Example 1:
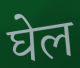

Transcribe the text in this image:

घेल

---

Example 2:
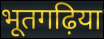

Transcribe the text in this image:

भूतगढ़िया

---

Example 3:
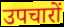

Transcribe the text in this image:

उपचारों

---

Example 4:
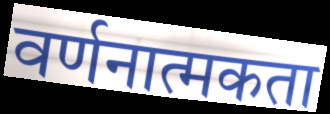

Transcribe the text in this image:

वर्णनात्मकता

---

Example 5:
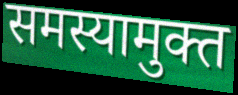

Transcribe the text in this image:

समस्यामुक्त